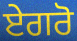
ਏਗਰੋ